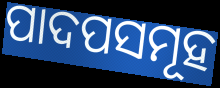
ପାଦପସମୂହ